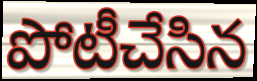
పోటీచేసిన